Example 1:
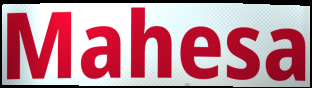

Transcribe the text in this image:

Mahesa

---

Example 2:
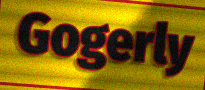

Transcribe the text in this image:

Gogerly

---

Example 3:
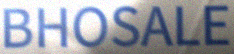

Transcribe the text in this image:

BHOSALE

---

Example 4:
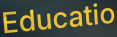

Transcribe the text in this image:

Educatio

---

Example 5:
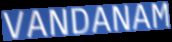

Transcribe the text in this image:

VANDANAM